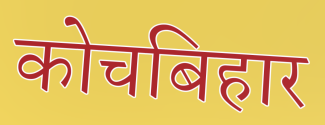
कोचबिहार